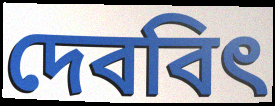
দেববিৎ